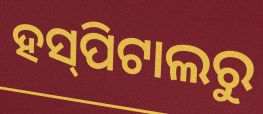
ହସ୍‍ପିଟାଲରୁ